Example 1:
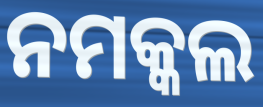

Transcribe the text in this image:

ନମକ୍କଲ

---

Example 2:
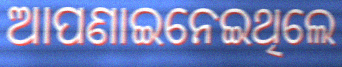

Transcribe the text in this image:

ଆପଣାଇନେଇଥିଲେ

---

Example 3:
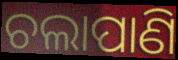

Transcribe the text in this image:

ଚଲାପାଣି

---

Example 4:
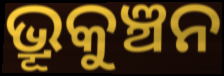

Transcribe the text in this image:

ଭ୍ରୂକୁଞ୍ଚନ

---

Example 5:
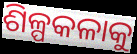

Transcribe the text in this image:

ଶିଳ୍ପକଳାକୁ